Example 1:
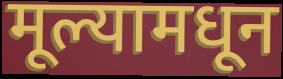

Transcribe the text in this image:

मूल्यामधून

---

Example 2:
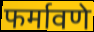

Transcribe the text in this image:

फर्मावणे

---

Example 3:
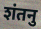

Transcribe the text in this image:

शंतनु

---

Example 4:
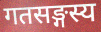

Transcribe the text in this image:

गतसङ्गस्य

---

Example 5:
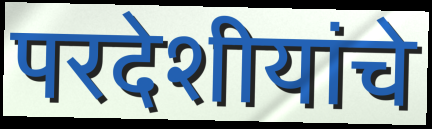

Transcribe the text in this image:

परदेशीयांचे